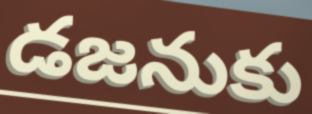
డజనుకు